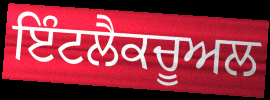
ਇੰਟਲੈਕਚੂਅਲ